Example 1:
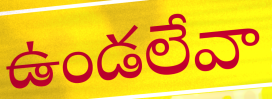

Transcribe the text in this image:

ఉండలేవా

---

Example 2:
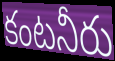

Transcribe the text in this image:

కంటనీరు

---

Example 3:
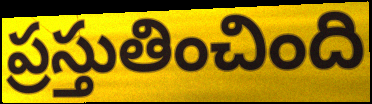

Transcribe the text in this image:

ప్రస్తుతించింది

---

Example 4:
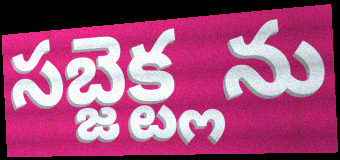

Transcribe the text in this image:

సబ్జెక్ట్లను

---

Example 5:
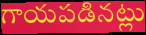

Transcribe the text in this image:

గాయపడినట్లు